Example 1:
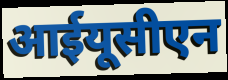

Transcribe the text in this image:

आईयूसीएन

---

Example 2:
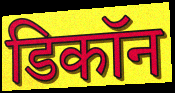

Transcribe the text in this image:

डिकॉन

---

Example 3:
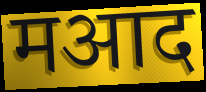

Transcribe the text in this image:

मआद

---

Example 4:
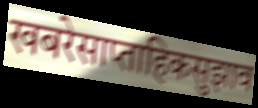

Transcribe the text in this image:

खबरेसाप्ताहिकसुझाव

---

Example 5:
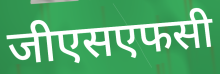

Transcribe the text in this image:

जीएसएफसी